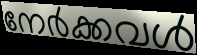
നേർക്കവൾ